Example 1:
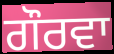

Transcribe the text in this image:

ਗੌਰਵਾ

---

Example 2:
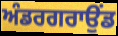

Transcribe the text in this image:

ਅੰਡਰਗਰਾਉਂਡ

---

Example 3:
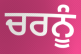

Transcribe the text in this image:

ਚਰਨੂੰ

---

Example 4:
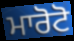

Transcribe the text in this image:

ਮਾਰੋਟੋ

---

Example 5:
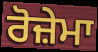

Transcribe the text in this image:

ਰੋਜ਼ੇਮਾ